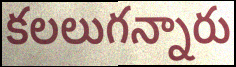
కలలుగన్నారు